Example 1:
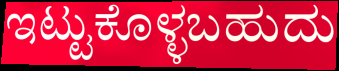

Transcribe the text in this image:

ಇಟ್ಟುಕೊಳ್ಳಬಹುದು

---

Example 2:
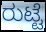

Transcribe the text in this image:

ರುಟ್ಟೆ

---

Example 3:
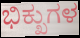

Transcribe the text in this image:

ಭಿಕ್ಖುಗಳ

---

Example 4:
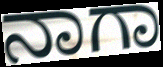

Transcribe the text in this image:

ನಾಗಾ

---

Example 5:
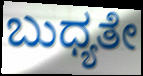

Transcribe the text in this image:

ಬುಧ್ಯತೇ